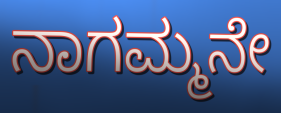
ನಾಗಮ್ಮನೇ